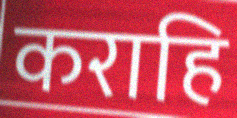
कराहि